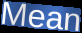
Mean